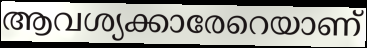
ആവശ്യക്കാരേറെയാണ്